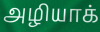
அழியாக்